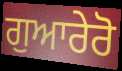
ਗੁਆਰੇਰੋ